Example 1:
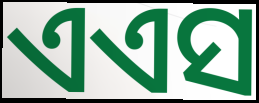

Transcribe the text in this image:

ଏଏସ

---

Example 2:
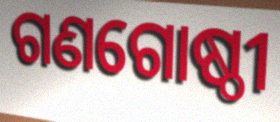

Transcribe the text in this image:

ଗଣଗୋଷ୍ଠୀ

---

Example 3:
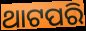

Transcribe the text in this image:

ଥାଟପରି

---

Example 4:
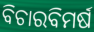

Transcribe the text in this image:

ବିଚାରବିମର୍ଷ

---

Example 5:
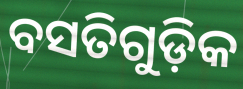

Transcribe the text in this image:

ବସତିଗୁଡ଼ିକ